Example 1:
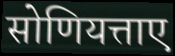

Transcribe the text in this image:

सोणियत्ताए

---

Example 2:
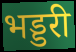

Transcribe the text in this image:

भड्डरी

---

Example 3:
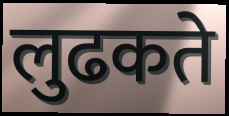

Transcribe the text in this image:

लुढकते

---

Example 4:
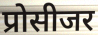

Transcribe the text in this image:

प्रोसीजर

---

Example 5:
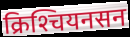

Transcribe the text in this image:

क्रिश्चियनसन